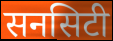
सनसिटी